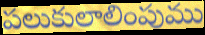
పలుకులాలింపుము